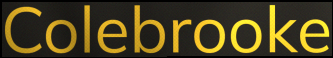
Colebrooke